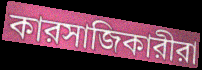
কারসাজিকারীরা